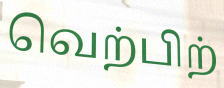
வெற்பிற்